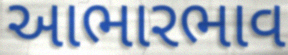
આભારભાવ